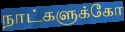
நாட்களுக்கோ